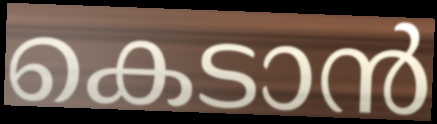
കെടാൻ